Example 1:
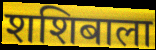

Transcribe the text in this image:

शशिबाला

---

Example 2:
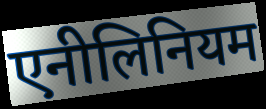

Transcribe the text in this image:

एनीलिनियम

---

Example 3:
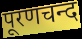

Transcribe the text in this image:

पूरणचन्द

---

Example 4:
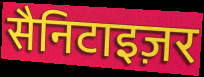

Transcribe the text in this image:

सैनिटाइज़र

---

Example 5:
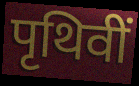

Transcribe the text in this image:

पृथिवीं